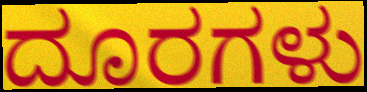
ದೂರಗಳು